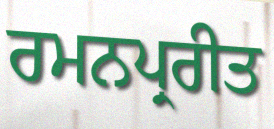
ਰਮਨਪ੍ਰਰੀਤ